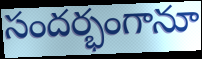
సందర్భంగానూ